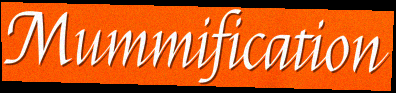
Mummification